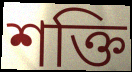
শক্তি